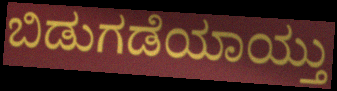
ಬಿಡುಗಡೆಯಾಯ್ತು